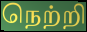
நெற்றி